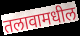
तलावामधील